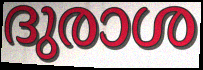
ദുരാശ